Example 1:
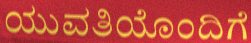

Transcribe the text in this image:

ಯುವತಿಯೊಂದಿಗೆ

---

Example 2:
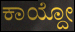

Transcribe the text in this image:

ಕಾಯ್ದೋ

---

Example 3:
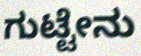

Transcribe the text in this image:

ಗುಟ್ಟೇನು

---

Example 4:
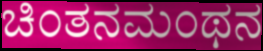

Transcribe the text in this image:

ಚಿಂತನಮಂಥನ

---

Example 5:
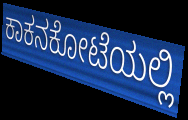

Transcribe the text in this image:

ಕಾಕನಕೋಟೆಯಲ್ಲಿ